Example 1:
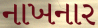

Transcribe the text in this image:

નાખનાર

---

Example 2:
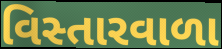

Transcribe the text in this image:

વિસ્તારવાળા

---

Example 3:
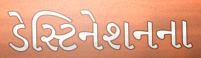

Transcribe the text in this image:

ડેસ્ટિનેશનના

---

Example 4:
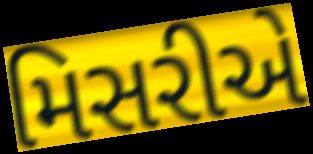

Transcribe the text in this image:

મિસરીએ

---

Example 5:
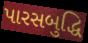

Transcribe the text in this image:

પારસબુદ્ધિ